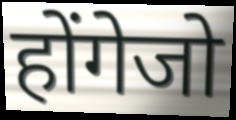
होंगेजो